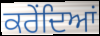
ਕਰੇਂਦਿਆਂ